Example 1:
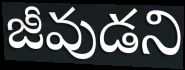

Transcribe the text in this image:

జీవుడని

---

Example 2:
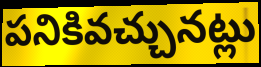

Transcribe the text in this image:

పనికివచ్చునట్లు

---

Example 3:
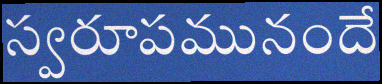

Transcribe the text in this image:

స్వరూపమునందే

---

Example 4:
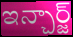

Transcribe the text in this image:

ఇన్చార్జ్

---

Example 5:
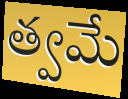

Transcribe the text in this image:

త్వమే